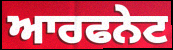
ਆਰਫਨੇਟ